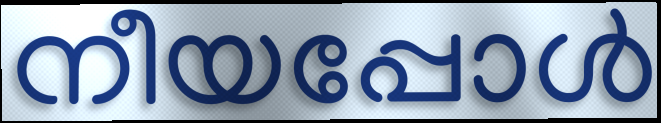
നീയപ്പോൾ